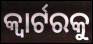
କ୍ୱାର୍ଟରକୁ